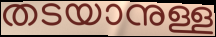
തടയാനുള്ള